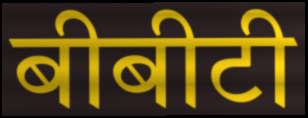
बीबीटी